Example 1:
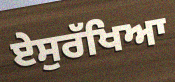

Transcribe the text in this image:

ਏਸੁਰੱਖਿਆ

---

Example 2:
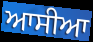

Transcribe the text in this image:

ਆਸੀਆ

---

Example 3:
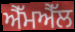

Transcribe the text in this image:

ਐੱਮਐੱਲ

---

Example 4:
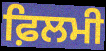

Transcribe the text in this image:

ਫ਼ਿਲਮੀ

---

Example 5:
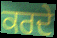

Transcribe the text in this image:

ਕਰਦੇ